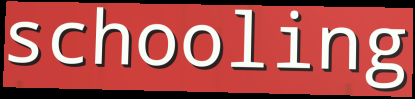
schooling